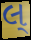
લ્